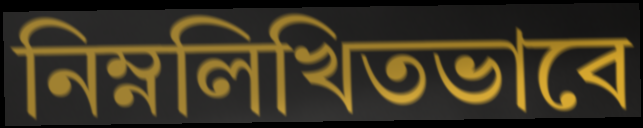
নিম্নলিখিতভাবে